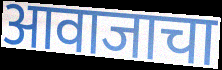
आवाजाचा